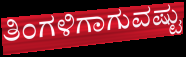
ತಿಂಗಳಿಗಾಗುವಷ್ಟು